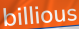
billious